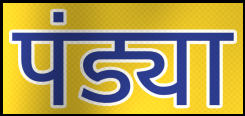
पंड्या